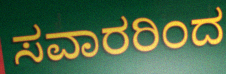
ಸವಾರರಿಂದ